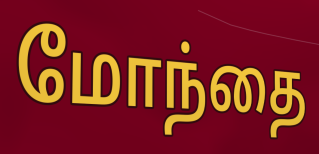
மோந்தை